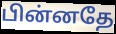
பின்னதே